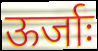
ऊर्जाः